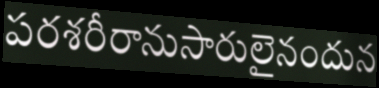
పరశరీరానుసారులైనందున